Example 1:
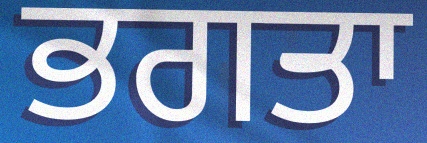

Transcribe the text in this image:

ਭਗਤਾ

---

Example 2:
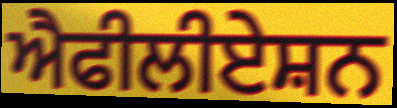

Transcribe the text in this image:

ਐਫੀਲੀਏਸ਼ਨ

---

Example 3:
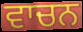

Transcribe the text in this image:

ਵਾਚਨ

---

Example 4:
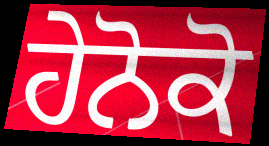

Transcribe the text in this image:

ਹੇਨੋਕੋ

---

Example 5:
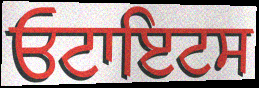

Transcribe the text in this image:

ਓਟਾਇਟਸ